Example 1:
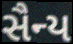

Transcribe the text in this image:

સૈન્ય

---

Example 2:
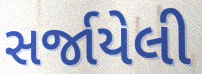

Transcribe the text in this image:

સર્જાયેલી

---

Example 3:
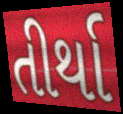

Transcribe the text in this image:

તીર્થા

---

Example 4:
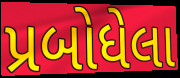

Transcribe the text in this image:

પ્રબોધેલા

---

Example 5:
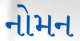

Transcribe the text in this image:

નોમન